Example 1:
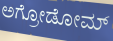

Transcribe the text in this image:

ಅಗ್ರೋಡೋಮ್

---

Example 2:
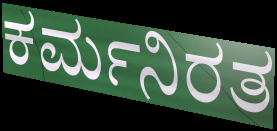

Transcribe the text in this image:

ಕರ್ಮನಿರತ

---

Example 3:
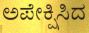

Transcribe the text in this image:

ಅಪೇಕ್ಷಿಸಿದ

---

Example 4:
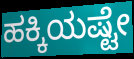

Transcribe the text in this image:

ಹಕ್ಕಿಯಷ್ಟೇ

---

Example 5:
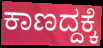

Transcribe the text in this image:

ಕಾಣದ್ದಕ್ಕೆ